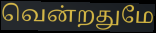
வென்றதுமே